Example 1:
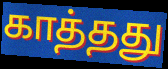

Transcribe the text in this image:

காத்தது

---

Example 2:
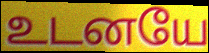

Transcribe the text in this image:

உடனயே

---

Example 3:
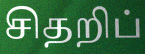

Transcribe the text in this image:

சிதறிப்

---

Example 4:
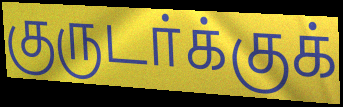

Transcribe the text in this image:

குருடர்க்குக்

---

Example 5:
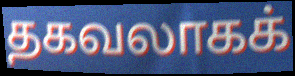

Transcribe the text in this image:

தகவலாகக்